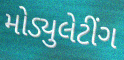
મોડ્યુલેટીંગ